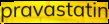
pravastatin